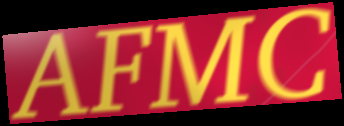
AFMC